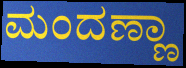
ಮಂದಣ್ಣಾ